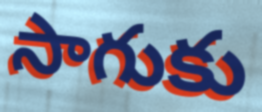
సాగుకు